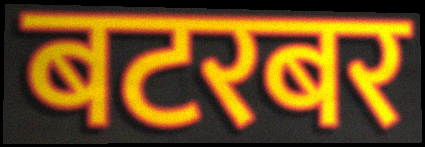
बटरबर